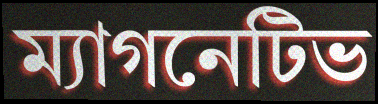
ম্যাগনেটিভ